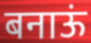
बनाऊं